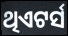
ଥିଏଟର୍ସ